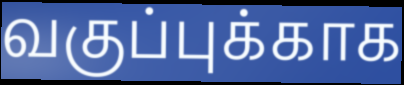
வகுப்புக்காக